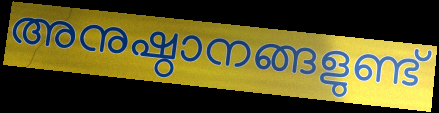
അനുഷ്ഠാനങ്ങളുണ്ട്